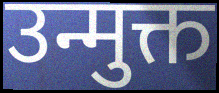
उन्मुक्त